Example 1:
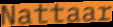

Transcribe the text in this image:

Nattaar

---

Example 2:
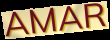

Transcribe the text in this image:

AMAR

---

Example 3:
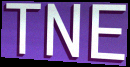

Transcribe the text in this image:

TNE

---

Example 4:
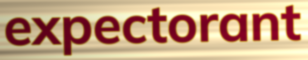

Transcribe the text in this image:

expectorant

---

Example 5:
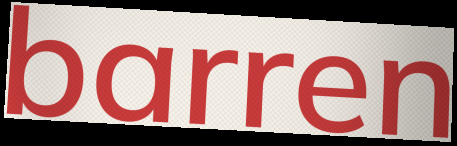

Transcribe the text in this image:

barren